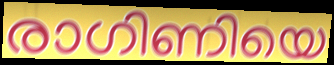
രാഗിണിയെ